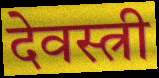
देवस्त्री